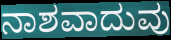
ನಾಶವಾದುವು